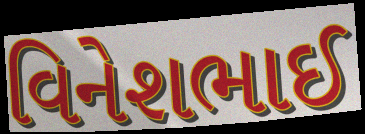
વિનેશભાઈ